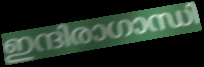
ഇന്ദിരാഗാന്ധി